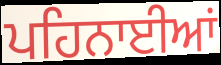
ਪਹਿਨਾਈਆਂ